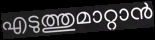
എടുത്തുമാറ്റാൻ